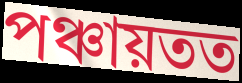
পঞ্চায়তত